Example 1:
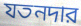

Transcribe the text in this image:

যতনদার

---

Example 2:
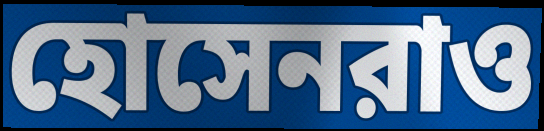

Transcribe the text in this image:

হোসেনরাও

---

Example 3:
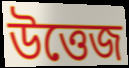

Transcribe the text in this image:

উত্তেজ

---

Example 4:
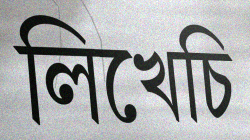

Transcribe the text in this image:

লিখেচি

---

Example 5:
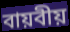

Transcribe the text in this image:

বায়বীয়